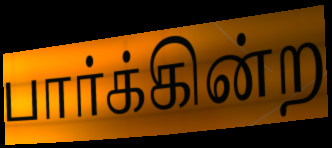
பார்க்கின்ற